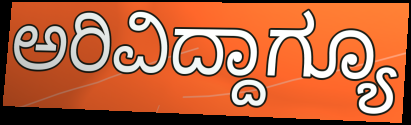
ಅರಿವಿದ್ದಾಗ್ಯೂ